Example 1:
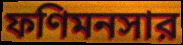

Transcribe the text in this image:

ফণিমনসার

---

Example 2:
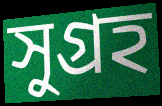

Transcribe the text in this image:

সুগ্রহ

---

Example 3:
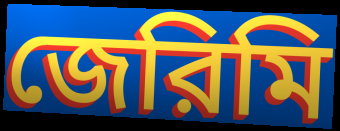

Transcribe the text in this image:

জেরিমি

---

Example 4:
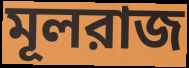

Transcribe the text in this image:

মূলরাজ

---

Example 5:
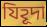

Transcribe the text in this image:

যিহূদা